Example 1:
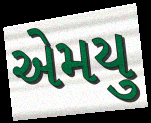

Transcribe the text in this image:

એમયુ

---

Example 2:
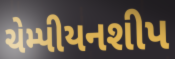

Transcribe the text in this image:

ચેમ્પીયનશીપ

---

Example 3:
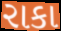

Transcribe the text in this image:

રાકા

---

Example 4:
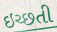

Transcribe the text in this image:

ઇચ્છતી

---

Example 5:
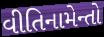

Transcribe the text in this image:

વીતિનામેન્તો